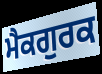
ਮੈਕਗੁਰਕ